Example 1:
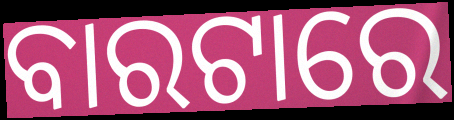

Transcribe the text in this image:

ବାରଟାରେ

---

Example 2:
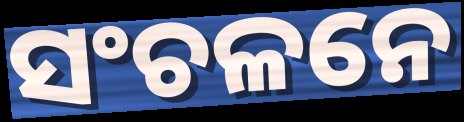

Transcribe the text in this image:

ସଂଚଳନେ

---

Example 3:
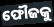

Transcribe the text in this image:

ଫୌଜକୁ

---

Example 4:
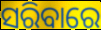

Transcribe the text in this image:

ସରିବାରେ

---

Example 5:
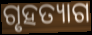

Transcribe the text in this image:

ଗୃହତ୍ୟାଗ